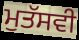
ਮੁਤੱਸਵੀ